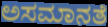
ಅಸಮಾನತೆ